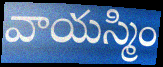
వాయస్మిం